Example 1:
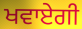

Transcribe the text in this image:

ਖਵਾਏਗੀ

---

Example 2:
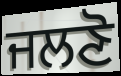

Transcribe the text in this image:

ਜਲਣੋ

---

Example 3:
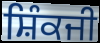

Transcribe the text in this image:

ਸ਼ਿੰਕਜੀ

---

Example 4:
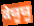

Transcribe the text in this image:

ਕੇਯੂਯੂ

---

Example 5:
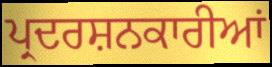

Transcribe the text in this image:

ਪ੍ਰਦਰਸ਼ਨਕਾਰੀਆਂ